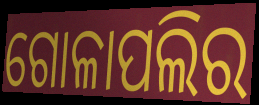
ଗୋଳାପଲିର